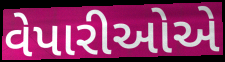
વેપારીઓએ